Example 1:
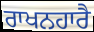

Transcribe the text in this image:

ਰਾਖਨਹਾਰੈ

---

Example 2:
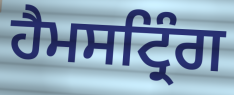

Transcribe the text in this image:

ਹੈਮਸਟ੍ਰਿੰਗ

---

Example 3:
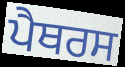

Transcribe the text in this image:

ਪੈਥਰਸ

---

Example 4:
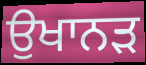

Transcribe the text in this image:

ਉਖਾਨੜ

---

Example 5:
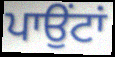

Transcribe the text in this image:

ਪਾਉਂਟਾਂ